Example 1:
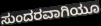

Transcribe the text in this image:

ಸುಂದರವಾಗಿಯೂ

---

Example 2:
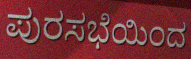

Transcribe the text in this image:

ಪುರಸಭೆಯಿಂದ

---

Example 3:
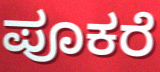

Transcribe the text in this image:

ಪೂಕರೆ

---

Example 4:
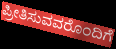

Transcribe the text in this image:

ಪ್ರೀತಿಸುವವರೊಂದಿಗೆ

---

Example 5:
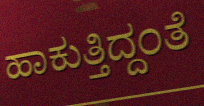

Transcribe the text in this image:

ಹಾಕುತ್ತಿದ್ದಂತೆ